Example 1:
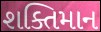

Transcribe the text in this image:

શક્તિમાન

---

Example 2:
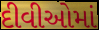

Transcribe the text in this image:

દીવીઓમાં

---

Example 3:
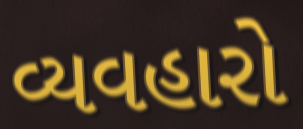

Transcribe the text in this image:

વ્યવહારો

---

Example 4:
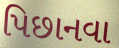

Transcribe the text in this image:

પિછાનવા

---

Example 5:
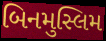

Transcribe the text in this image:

બિનમુસ્લિમ